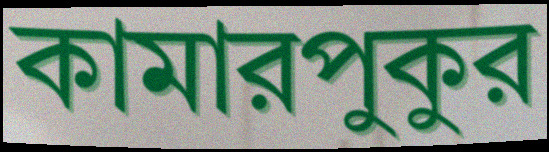
কামারপুকুর